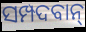
ସମ୍ପଦବାନ୍